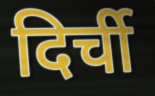
दिर्ची